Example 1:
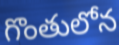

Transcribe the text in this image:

గొంతులోన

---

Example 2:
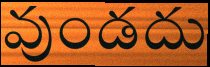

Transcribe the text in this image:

వుండదు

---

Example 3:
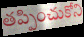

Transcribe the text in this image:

తప్పించుకోని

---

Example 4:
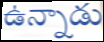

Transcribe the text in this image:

ఉన్నాడు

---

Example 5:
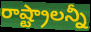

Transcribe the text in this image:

రాష్ట్రాలన్నీ